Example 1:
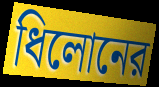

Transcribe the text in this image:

ধিলোনের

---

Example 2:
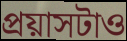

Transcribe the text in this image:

প্রয়াসটাও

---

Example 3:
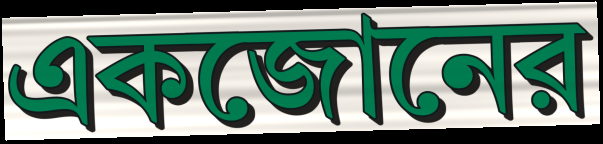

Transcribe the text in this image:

একজোনের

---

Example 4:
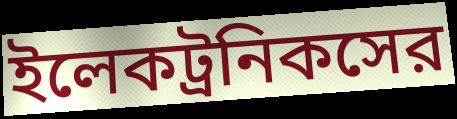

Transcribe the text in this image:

ইলেকট্রনিকসের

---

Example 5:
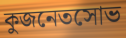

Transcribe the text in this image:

কুজনেতসোভ